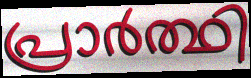
പ്രാർത്ഥി